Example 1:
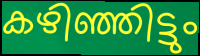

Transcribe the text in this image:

കഴിഞ്ഞിട്ടും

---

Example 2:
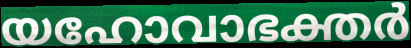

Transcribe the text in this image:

യഹോവാഭക്തർ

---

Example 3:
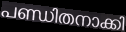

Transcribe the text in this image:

പണ്ഡിതനാക്കി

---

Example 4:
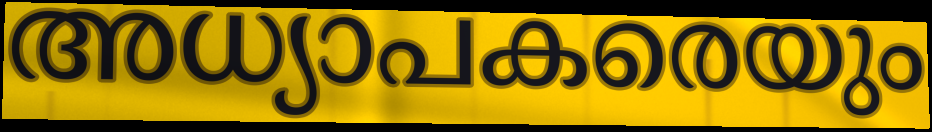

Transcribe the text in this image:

അധ്യാപകരെയും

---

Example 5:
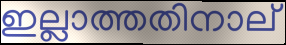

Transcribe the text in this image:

ഇല്ലാത്തതിനാല്